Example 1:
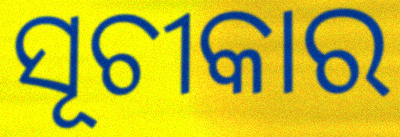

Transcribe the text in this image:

ସୂଚୀକାର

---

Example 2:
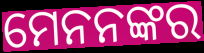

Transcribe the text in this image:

ମେନନଙ୍କର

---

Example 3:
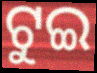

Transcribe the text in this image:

ଟୁଇ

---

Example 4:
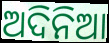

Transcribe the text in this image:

ଅଦିନିଆ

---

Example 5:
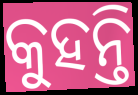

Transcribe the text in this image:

କୁହନ୍ତି